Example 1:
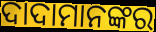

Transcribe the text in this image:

ଦାଦାମାନଙ୍କର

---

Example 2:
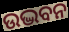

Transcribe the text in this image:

ଉଦ୍ଭବନ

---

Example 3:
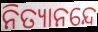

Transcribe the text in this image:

ନିତ୍ୟାନନ୍ଦେ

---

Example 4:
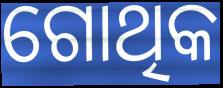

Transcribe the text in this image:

ଗୋଥିକ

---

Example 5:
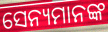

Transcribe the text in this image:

ସେନ୍ୟମାନଙ୍କ